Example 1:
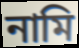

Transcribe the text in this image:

নামি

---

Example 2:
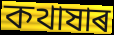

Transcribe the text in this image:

কথাষাৰ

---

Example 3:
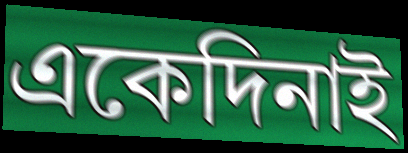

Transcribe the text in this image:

একেদিনাই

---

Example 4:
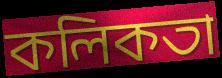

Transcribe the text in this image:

কলিকতা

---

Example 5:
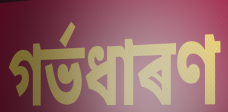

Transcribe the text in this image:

গৰ্ভধাৰণ